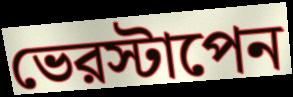
ভেরস্টাপেন